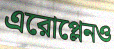
এরোপ্লেনও